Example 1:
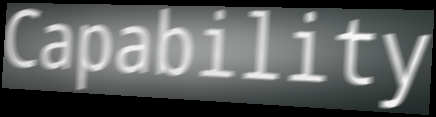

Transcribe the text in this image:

Capability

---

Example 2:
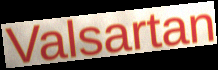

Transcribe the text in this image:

Valsartan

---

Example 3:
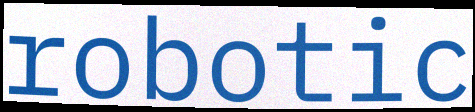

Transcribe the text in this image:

robotic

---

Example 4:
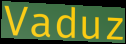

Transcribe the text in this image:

Vaduz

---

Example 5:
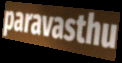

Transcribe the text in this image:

paravasthu